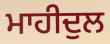
ਮਾਹੀਦੁਲ